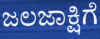
ಜಲಜಾಕ್ಷಿಗೆ